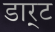
डार्ट